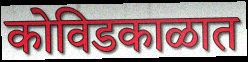
कोविडकाळात